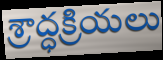
శ్రాద్ధక్రియలు